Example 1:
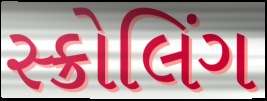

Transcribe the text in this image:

સ્ક્રોલિંગ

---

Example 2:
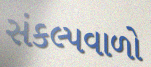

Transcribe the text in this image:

સંકલ્પવાળો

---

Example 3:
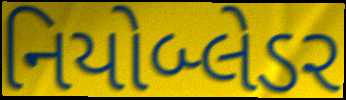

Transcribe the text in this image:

નિયોબ્લેડર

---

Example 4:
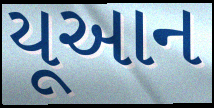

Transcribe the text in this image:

યૂઆન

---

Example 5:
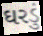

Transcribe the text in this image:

ઘરડું